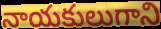
నాయకులుగాని